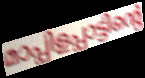
മാപ്പിളപ്പാട്ടിന്റെ